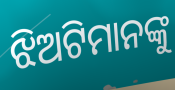
ଝିଅଟିମାନଙ୍କୁ